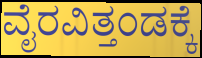
ವೈರವಿತ್ತಂಡಕ್ಕೆ